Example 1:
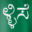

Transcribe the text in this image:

ಳ್ಳಿಸೆ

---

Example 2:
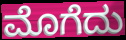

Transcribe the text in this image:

ಮೊಗೆದು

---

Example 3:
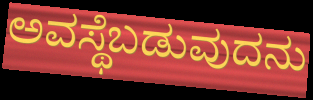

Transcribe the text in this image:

ಅವಸ್ಥೆಬಡುವುದನು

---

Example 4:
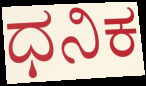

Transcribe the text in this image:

ಧನಿಕ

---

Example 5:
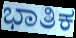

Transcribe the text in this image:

ಭಾತಿಕ